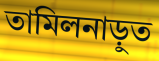
তামিলনাড়ুত